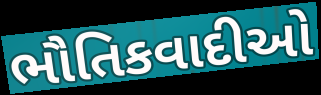
ભૌતિકવાદીઓ